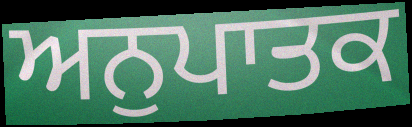
ਅਨੁਪਾਤਕ